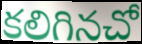
కలిగినచో